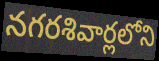
నగరశివార్లలోని